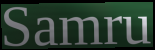
Samru